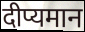
दीप्यमान